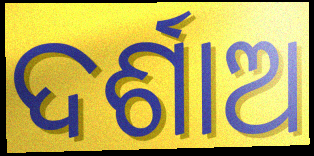
ଦର୍ଶାଅ